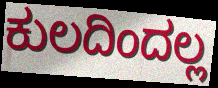
ಕುಲದಿಂದಲ್ಲ